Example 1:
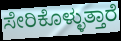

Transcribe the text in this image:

ಸೇರಿಕೊಳ್ಳುತ್ತಾರೆ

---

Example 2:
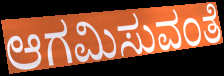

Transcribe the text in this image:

ಆಗಮಿಸುವಂತೆ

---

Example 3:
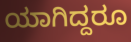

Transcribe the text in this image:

ಯಾಗಿದ್ದರೂ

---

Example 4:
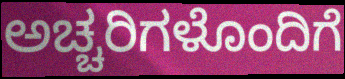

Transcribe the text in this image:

ಅಚ್ಚರಿಗಳೊಂದಿಗೆ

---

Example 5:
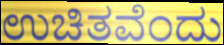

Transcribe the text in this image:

ಉಚಿತವೆಂದು